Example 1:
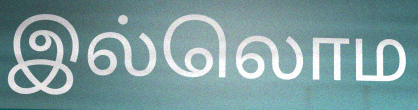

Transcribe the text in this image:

இல்லொம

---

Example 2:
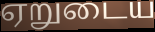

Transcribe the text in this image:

ஏறுடைய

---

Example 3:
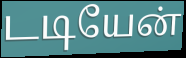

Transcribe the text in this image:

டடியேன்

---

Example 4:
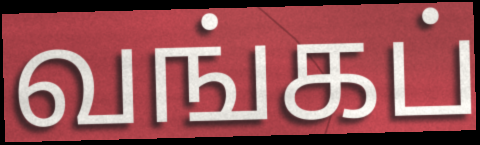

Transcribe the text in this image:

வங்கப்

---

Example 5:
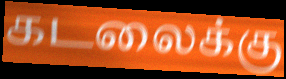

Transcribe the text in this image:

கடலைக்கு